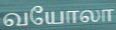
வயோலா